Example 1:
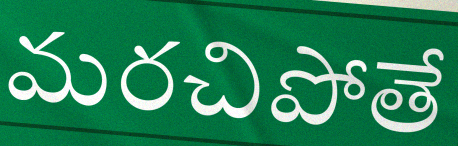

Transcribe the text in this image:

మరచిపోతే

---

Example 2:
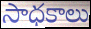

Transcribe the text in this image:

సాధకాలు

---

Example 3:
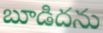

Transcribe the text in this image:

బూడిదను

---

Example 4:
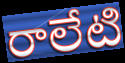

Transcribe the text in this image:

రాలేటి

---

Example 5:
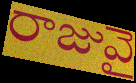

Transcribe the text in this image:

రాజువై